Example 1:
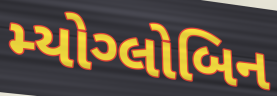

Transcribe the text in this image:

મ્યોગ્લોબિન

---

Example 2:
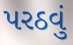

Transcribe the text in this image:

પરઠવું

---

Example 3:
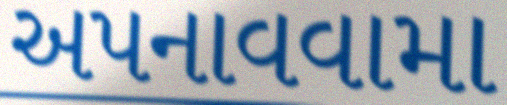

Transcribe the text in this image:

અપનાવવામા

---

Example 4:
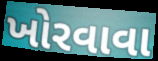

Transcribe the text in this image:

ખોરવાવા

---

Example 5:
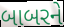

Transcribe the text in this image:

બાબરને